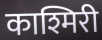
काश्मिरी